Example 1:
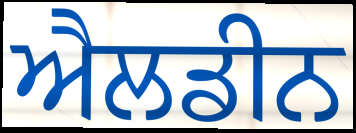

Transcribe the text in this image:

ਐਲਡੀਨ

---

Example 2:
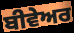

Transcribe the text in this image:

ਬੀਵੇਅਰ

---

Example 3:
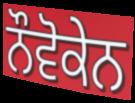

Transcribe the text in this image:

ਨੌਵੋਕੇਨ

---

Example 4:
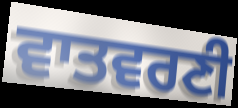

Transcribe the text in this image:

ਵਾਤਵਰਣੀ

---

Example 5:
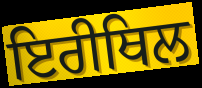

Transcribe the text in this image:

ਇਰੀਥਿਲ